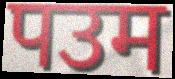
पउम